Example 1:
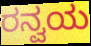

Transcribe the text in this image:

ರನ್ವಯ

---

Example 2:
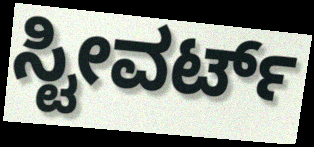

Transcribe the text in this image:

ಸ್ಟೀವರ್ಟ್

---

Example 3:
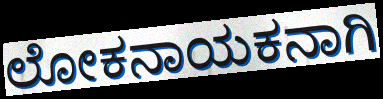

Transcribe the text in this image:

ಲೋಕನಾಯಕನಾಗಿ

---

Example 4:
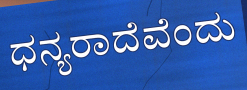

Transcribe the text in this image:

ಧನ್ಯರಾದೆವೆಂದು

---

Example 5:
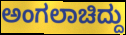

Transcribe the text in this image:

ಅಂಗಲಾಚಿದ್ದು